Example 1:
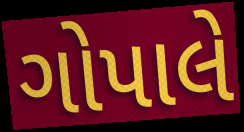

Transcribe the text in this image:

ગોપાલે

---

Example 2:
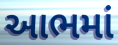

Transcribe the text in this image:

આભમાં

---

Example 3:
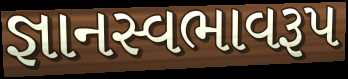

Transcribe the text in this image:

જ્ઞાનસ્વભાવરૂપ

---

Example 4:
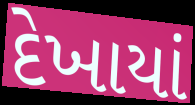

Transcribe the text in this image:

દેખાયાં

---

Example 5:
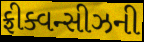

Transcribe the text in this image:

ફ્રીક્વન્સીઝની